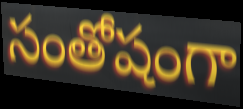
సంతోషంగా